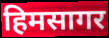
हिमसागर